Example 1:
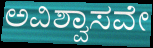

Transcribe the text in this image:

ಅವಿಶ್ವಾಸವೇ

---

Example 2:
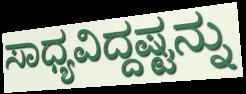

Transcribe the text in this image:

ಸಾಧ್ಯವಿದ್ದಷ್ಟನ್ನು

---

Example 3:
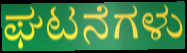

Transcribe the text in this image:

ಘಟನೆಗಳು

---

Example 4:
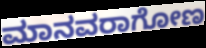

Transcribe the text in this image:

ಮಾನವರಾಗೋಣ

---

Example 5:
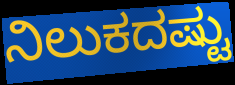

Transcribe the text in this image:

ನಿಲುಕದಷ್ಟು